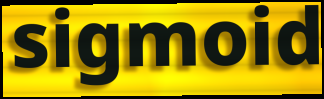
sigmoid